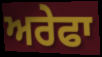
ਅਰੇਫਾ